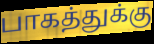
பாகத்துக்கு